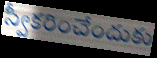
స్వీకరించేందుకు